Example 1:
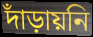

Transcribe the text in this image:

দাঁড়ায়নি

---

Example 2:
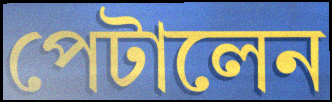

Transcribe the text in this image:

পেটালেন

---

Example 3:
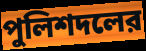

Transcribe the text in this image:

পুলিশদলের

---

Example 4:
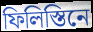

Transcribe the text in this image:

ফিলিস্তিনে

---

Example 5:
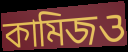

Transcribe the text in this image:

কামিজও